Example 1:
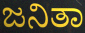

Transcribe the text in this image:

ಜನಿತಾ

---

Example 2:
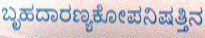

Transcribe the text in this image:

ಬೃಹದಾರಣ್ಯಕೋಪನಿಷತ್ತಿನ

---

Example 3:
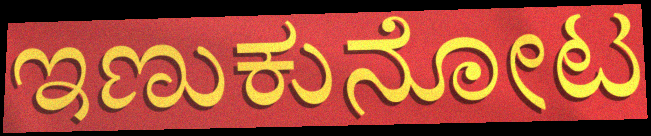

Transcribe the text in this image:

ಇಣುಕುನೋಟ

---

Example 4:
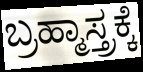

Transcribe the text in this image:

ಬ್ರಹ್ಮಾಸ್ತ್ರಕ್ಕೆ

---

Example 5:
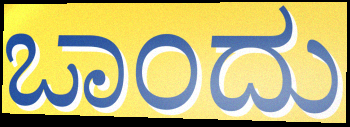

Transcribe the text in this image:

ಒಾಂದು